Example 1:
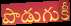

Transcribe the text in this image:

పొడుగుకీ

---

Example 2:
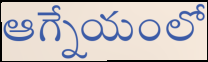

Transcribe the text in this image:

ఆగ్నేయంలో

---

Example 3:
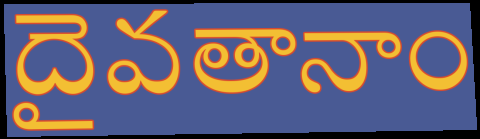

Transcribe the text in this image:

దైవతానాం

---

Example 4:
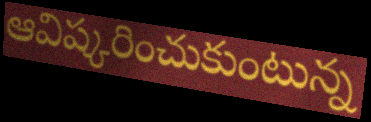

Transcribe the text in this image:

ఆవిష్కరించుకుంటున్న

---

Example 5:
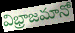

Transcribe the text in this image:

విభ్రాజమానో